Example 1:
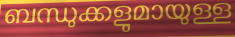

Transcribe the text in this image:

ബന്ധുക്കളുമായുള്ള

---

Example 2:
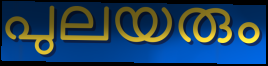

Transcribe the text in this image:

പുലയരും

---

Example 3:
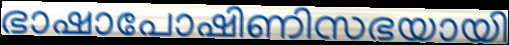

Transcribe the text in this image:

ഭാഷാപോഷിണിസഭയായി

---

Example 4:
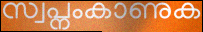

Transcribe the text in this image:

സ്വപ്നംകാണുക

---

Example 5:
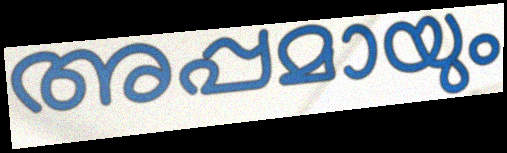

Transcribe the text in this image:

അപ്പമായും